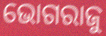
ଭୋଗରାଜୁ